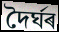
দৈৰ্ঘৰ